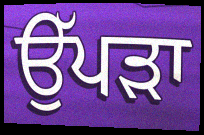
ਉੱਪੜਾ